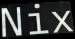
Nix